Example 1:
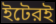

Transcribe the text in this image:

ইটেরই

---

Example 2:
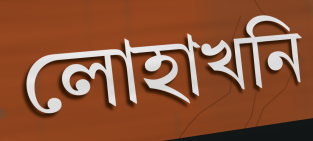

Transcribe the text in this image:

লোহাখনি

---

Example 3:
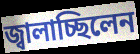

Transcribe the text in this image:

জ্বালাচ্ছিলেন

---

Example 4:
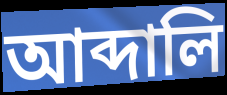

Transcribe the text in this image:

আব্দালি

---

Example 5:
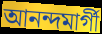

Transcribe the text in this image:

আনন্দমার্গী